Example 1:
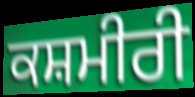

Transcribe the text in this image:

ਕਸ਼ਮੀਰੀ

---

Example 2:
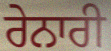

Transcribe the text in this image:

ਰੇਨਾਰੀ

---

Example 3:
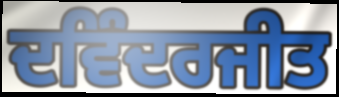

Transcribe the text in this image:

ਦਵਿੰਦਰਜੀਤ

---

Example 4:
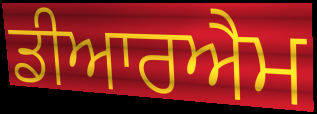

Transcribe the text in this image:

ਡੀਆਰਐਮ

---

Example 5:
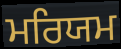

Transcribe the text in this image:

ਮਰਿਯਮ